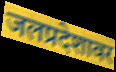
जलप्रदेशावर